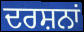
ਦਰਸ਼ਨਾਂ